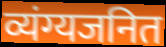
व्यंग्यजनित